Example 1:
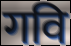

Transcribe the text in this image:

गवि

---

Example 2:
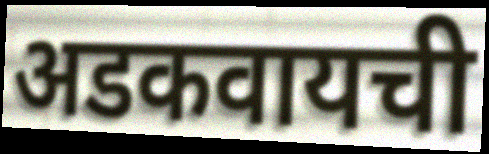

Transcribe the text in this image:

अडकवायची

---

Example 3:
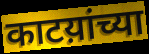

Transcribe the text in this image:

काटय़ांच्या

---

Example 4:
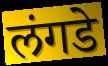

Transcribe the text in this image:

लंगडे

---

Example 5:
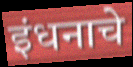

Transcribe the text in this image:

इंधनाचे